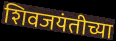
शिवजयंतीच्या